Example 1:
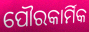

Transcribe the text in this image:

ପୌରକାର୍ମିକ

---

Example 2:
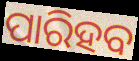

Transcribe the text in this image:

ପାରିହବ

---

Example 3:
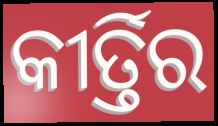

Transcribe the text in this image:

କୀର୍ତ୍ତିର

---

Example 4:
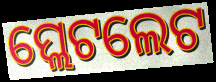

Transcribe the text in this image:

ପ୍ଲେଟଲେଟ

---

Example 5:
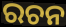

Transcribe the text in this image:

ରଚନ